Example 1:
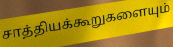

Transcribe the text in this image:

சாத்தியக்கூறுகளையும்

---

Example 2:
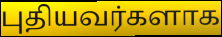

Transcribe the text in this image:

புதியவர்களாக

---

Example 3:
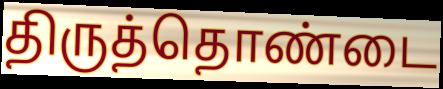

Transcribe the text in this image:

திருத்தொண்டை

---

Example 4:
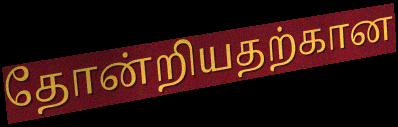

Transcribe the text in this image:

தோன்றியதற்கான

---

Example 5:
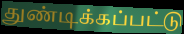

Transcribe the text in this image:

துண்டிக்கப்பட்டு